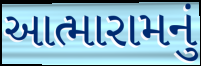
આત્મારામનું